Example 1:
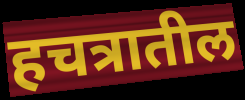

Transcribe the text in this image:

हचत्रातील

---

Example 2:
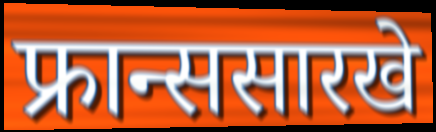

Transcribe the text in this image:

फ्रान्ससारखे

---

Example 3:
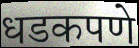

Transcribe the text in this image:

धडकपणे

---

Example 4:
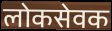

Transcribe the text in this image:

लोकसेवक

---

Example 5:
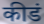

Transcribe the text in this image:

कीडं